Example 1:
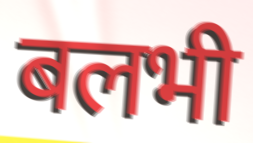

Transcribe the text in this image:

बलभी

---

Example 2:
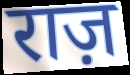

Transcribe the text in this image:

राज़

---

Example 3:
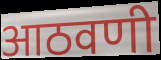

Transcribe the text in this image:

आठवणी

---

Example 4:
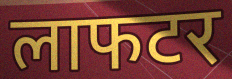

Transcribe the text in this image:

लाफटर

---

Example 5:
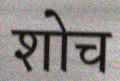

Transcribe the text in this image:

शोच